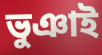
ভুঞাই